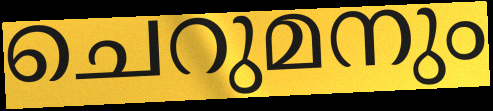
ചെറുമനും